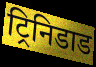
ट्रिनिडाड